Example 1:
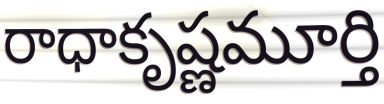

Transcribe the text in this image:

రాధాకృష్ణమూర్తి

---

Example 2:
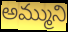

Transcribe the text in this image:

అమ్ముని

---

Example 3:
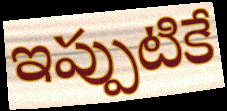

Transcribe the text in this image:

ఇప్పుటికే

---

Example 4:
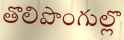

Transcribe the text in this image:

తొలిపొంగుల్లొ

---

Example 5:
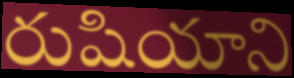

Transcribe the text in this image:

రుషియాని